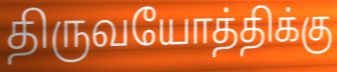
திருவயோத்திக்கு